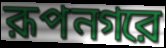
রূপনগরে